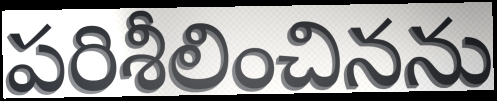
పరిశీలించినను